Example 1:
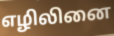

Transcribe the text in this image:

எழிலினை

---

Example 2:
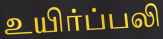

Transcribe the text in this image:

உயிர்ப்பலி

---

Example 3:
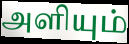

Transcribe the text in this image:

அளியும்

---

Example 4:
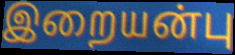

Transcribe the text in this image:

இறையன்பு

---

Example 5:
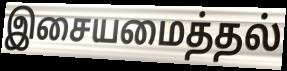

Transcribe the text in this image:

இசையமைத்தல்